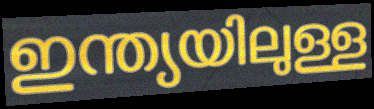
ഇന്ത്യയിലുള്ള